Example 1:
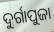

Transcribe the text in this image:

ଦୁର୍ଗାପୁଜା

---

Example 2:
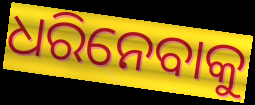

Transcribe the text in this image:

ଧରିନେବାକୁ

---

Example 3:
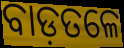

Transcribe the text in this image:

ବାଡ଼ତଳେ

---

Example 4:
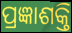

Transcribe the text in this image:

ପ୍ରଜ୍ଞାଶକ୍ତି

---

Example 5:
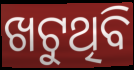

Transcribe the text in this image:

ଖଟୁଥିବି